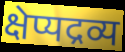
क्षेप्यद्रव्य